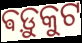
ଵଡ଼ୁକୁଟ